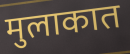
मुलाकात